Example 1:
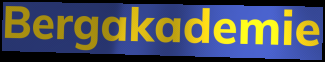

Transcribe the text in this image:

Bergakademie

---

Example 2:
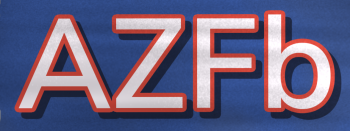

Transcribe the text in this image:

AZFb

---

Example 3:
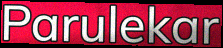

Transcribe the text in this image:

Parulekar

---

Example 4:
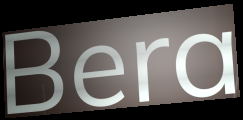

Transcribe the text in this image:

Bera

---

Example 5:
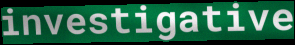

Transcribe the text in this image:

investigative